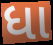
ધા